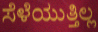
ಸೆಳೆಯುತ್ತಿಲ್ಲ